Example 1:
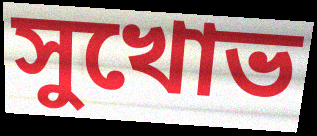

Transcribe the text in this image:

সুখোভ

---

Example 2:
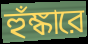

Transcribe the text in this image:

হুঁঙ্কারে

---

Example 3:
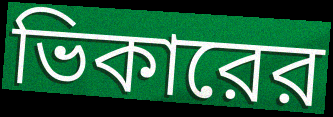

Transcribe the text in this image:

ভিকারের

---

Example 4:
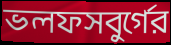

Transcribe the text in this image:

ভলফসবুর্গের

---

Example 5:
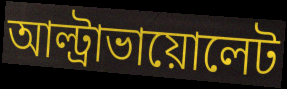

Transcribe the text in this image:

আল্ট্রাভায়োলেট